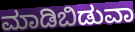
ಮಾಡಿಬಿಡುವಾ